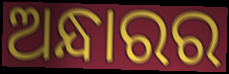
ଅନ୍ଧାରର